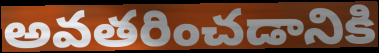
అవతరించడానికి